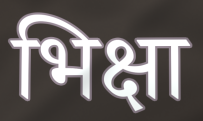
भिक्षा